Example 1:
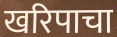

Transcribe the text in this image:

खरिपाचा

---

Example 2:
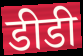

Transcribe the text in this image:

डीडी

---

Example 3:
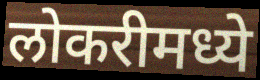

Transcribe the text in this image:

लोकरीमध्ये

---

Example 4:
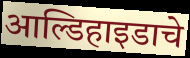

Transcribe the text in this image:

आल्डिहाइडाचे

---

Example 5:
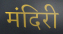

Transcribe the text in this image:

मंदिरी